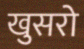
खुसरो